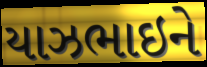
યાઝભાઇને